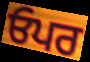
ਓਪਰ